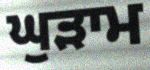
ਘੁੜਾਮ